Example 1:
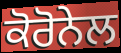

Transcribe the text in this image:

ਕੋਰੋਨੇਲ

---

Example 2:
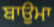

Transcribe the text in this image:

ਬਾਉਮਾ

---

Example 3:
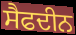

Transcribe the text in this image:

ਸੈਫਦੀਨ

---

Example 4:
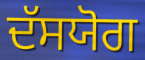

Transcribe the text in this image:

ਦੱਸਯੋਗ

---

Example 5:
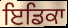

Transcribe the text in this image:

ਇਡਿਕਾ